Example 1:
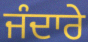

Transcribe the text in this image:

ਜੰਦਾਰੇ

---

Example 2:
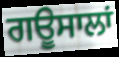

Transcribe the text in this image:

ਗਊਸਾਲਾਂ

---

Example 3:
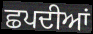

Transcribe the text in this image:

ਛਪਦੀਆਂ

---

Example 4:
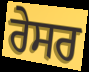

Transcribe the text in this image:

ਰੇਸਰ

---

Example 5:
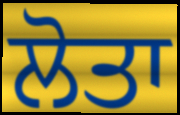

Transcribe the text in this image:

ਲੋਤਾ